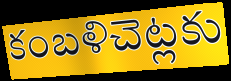
కంబళిచెట్లకు